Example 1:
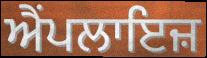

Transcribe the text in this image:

ਐਂਪਲਾਇਜ਼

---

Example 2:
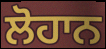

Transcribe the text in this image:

ਲੋਹਾਨ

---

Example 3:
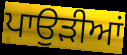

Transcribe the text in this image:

ਪਾਉੜੀਆਂ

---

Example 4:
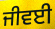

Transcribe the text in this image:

ਜੀਵਈ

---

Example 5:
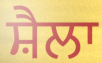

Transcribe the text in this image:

ਸ਼ੈਲਾ